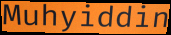
Muhyiddin